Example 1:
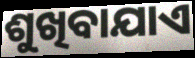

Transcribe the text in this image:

ଶୁଖିବାଯାଏ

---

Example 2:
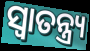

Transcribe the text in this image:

ସ୍ଵାତନ୍ତ୍ର୍ୟ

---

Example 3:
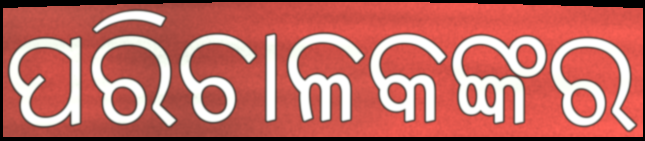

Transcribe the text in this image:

ପରିଚାଳକଙ୍କର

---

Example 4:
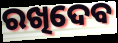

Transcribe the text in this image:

ରଖିଦେବ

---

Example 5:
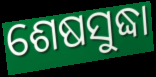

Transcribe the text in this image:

ଶେଷସୁଦ୍ଧା